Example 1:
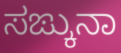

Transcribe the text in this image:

ಸಙ್ಕುನಾ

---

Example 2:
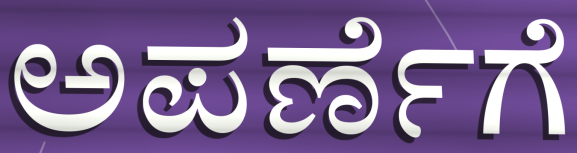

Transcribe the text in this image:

ಅಪರ್ಣೆಗೆ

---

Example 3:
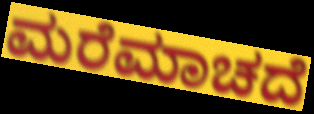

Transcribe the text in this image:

ಮರೆಮಾಚದೆ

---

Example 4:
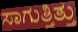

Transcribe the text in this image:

ಸಾಗುತ್ತಿತ್ತು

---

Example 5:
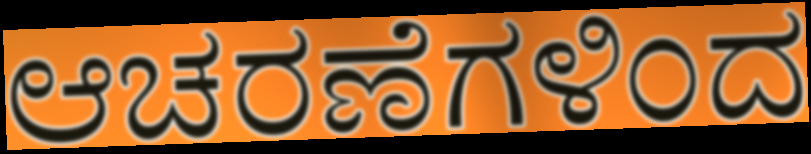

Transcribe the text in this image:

ಆಚರಣೆಗಳಿಂದ